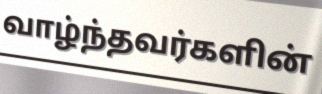
வாழ்ந்தவர்களின்